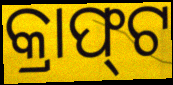
କ୍ରାଫ୍‌ଟ